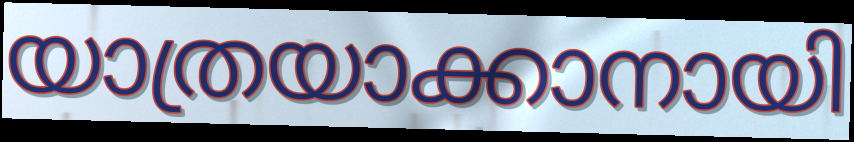
യാത്രയാക്കാനായി